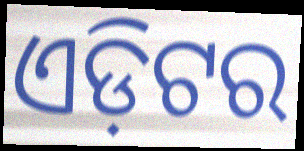
ଏଡ଼ିଟର